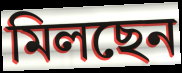
মিলছেন